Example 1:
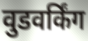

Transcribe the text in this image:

वुडवर्किंग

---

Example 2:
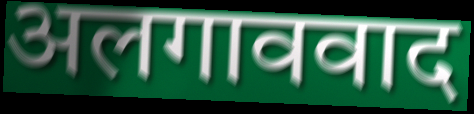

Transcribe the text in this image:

अलगाववाद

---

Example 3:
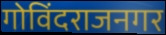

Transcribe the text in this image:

गोविंदराजनगर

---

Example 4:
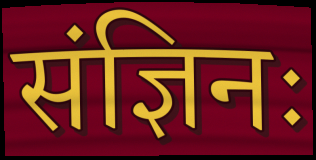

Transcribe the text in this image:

संज्ञिनः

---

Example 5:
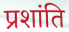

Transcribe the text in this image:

प्रशांति